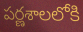
పర్ణశాలలోకి